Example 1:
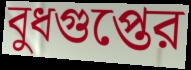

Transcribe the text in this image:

বুধগুপ্তের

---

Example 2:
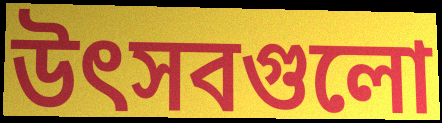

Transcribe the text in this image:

উৎসবগুলো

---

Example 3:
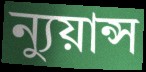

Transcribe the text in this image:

ন্যুয়ান্স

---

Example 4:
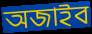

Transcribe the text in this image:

অজাইব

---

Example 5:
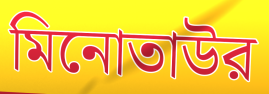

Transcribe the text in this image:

মিনোতাউর